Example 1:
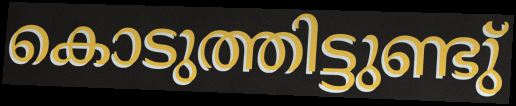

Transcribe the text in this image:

കൊടുത്തിട്ടുണ്ടു്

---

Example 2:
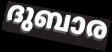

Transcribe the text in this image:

ദുബാര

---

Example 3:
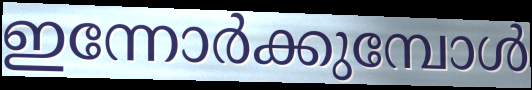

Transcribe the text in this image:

ഇന്നോർക്കുമ്പോൾ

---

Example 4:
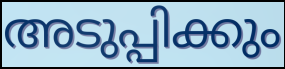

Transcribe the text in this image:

അടുപ്പിക്കും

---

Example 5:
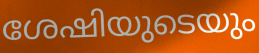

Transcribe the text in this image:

ശേഷിയുടെയും